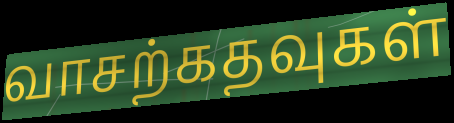
வாசற்கதவுகள்